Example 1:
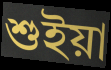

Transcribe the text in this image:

শুইয়া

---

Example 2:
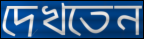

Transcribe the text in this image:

দেখতেন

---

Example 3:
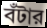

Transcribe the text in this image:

বঁটার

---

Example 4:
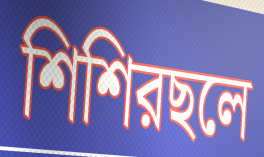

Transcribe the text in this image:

শিশিরছলে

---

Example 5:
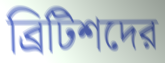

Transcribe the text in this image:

ব্রিটিশদের